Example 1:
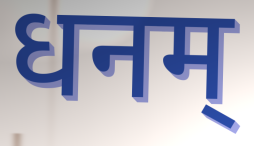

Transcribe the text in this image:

धनम्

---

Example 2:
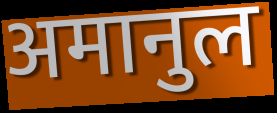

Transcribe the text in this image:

अमानुल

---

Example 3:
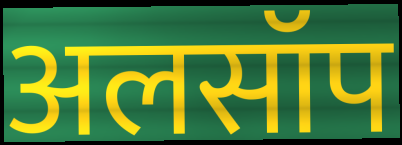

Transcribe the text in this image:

अलसॉप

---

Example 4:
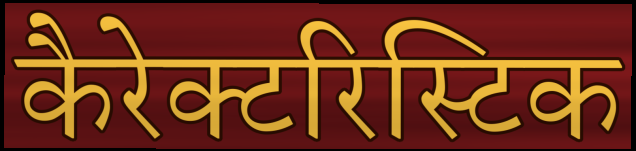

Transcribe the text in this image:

कैरेक्टरिस्टिक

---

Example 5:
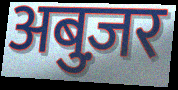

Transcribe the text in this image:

अबुज़र